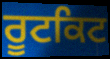
ਰੂਟਕਿਟ